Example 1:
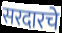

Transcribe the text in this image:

सरदारचे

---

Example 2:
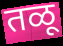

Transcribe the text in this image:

तळू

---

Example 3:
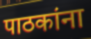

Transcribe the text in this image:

पाठकांना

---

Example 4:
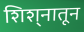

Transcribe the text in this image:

शिश्नातून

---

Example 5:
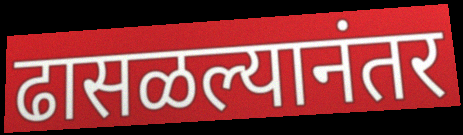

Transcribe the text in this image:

ढासळल्यानंतर